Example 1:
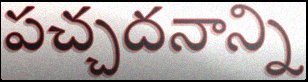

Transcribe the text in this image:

పచ్చదనాన్ని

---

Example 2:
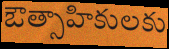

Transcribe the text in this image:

ఔత్సాహికులకు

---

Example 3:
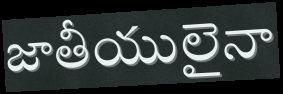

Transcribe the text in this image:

జాతీయులైనా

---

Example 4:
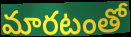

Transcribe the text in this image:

మారటంతో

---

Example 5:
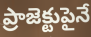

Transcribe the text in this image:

ప్రాజెక్టుపైనే